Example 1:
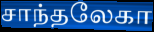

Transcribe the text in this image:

சாந்தலேகா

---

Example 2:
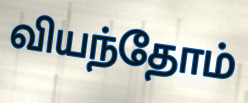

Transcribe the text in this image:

வியந்தோம்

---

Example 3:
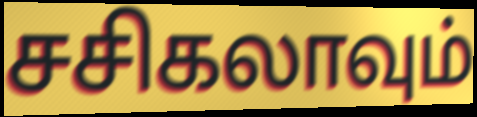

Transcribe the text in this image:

சசிகலாவும்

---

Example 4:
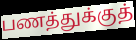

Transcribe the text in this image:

பணத்துக்குத்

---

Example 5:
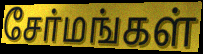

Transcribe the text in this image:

சேர்மங்கள்